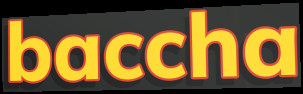
baccha